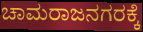
ಚಾಮರಾಜನಗರಕ್ಕೆ